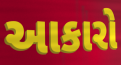
આકારો